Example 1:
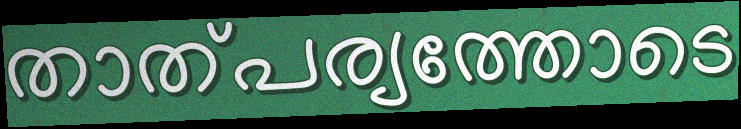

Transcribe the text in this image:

താത്പര്യത്തോടെ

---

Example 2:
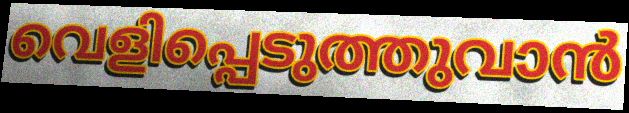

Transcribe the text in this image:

വെളിപ്പെടുത്തുവാൻ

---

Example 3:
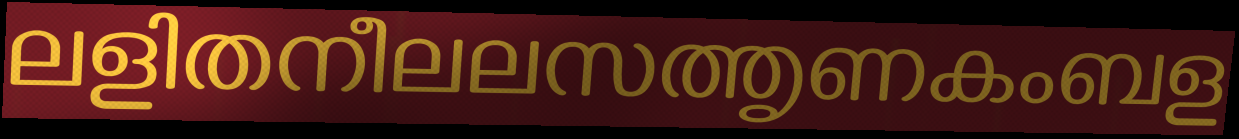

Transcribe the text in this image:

ലളിതനീലലസത്തൃണകംബള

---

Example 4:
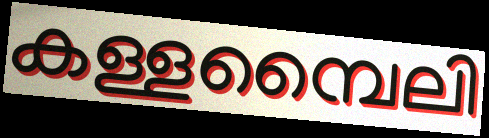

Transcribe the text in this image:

കള്ളമ്പൈലി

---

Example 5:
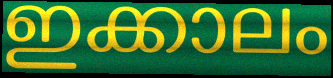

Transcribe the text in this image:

ഇക്കാലം